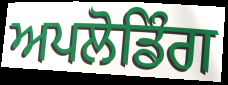
ਅਪਲੋਡਿੰਗ